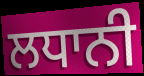
ਲਧਾਨੀ